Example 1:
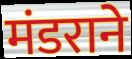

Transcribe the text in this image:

मंडराने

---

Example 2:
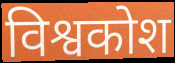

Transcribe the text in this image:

विश्वकोश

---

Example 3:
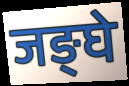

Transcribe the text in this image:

जङ्घे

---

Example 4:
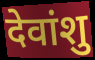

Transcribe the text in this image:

देवांशु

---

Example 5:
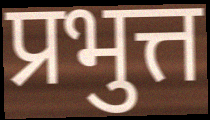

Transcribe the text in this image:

प्रभुत्त